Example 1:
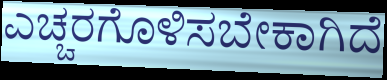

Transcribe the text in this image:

ಎಚ್ಚರಗೊಳಿಸಬೇಕಾಗಿದೆ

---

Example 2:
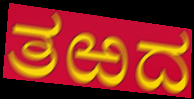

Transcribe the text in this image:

ತಱದ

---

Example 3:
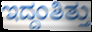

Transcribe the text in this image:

ಇದ್ದಂತಿತ್ತು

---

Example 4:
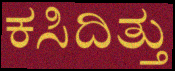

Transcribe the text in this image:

ಕಸಿದಿತ್ತು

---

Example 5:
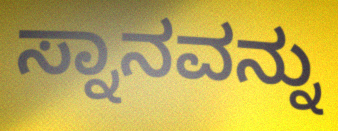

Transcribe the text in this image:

ಸ್ನಾನವನ್ನು